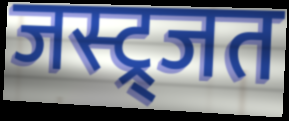
जस्ट्र्जत